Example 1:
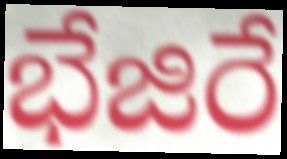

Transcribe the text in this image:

భేజిరే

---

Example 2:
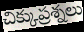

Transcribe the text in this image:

చిక్కుప్రశ్నలు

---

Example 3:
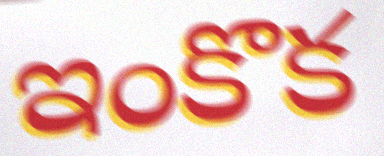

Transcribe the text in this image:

ఇంకొక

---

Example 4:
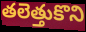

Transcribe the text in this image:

తలెత్తుకొని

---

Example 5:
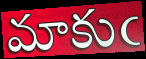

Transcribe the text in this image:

మాకుఁ